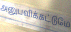
அனுபவிக்கட்டுமே